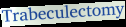
Trabeculectomy